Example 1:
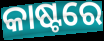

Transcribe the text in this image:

କାଷ୍ଟରେ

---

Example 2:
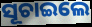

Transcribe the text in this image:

ସୂଚାଇଲେ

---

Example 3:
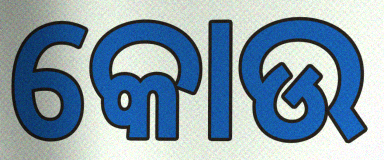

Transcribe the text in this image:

କୋଉ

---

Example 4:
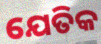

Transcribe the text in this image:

ଯେତିକ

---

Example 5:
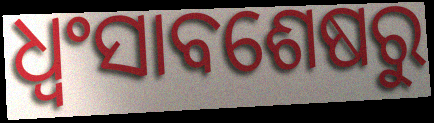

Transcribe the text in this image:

ଧ୍ୱଂସାବଶେଷରୁ